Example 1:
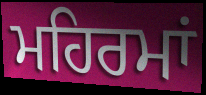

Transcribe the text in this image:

ਮਹਿਰਮਾਂ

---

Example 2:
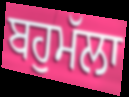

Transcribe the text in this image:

ਬਹੁਮੱਲਾ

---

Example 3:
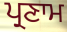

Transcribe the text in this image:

ਪ੍ਰਣਾਮ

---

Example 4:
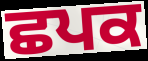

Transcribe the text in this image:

ਛਪਕ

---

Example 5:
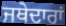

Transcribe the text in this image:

ਜਥੇਦਾਰਾਂ